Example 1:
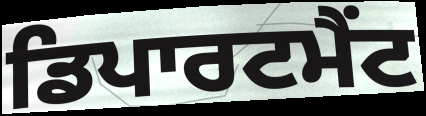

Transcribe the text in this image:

ਡਿਪਾਰਟਮੈਂਟ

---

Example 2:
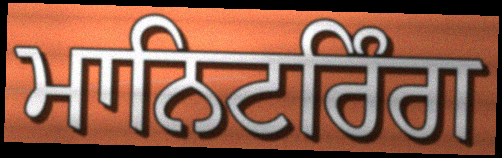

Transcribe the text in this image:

ਮਾਨਿਟਰਿੰਗ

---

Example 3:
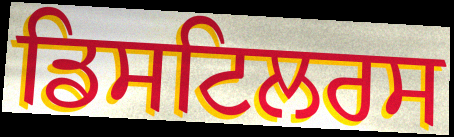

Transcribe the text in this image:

ਡਿਸਟਿਲਰਸ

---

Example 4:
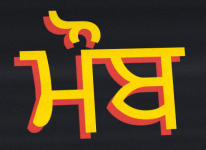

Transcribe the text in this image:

ਮੌਬ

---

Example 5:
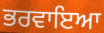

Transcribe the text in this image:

ਭਰਵਾਇਆ